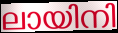
ലായിനി